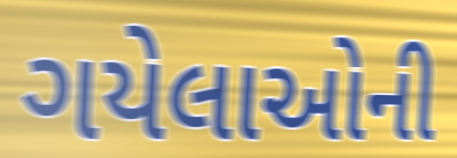
ગયેલાઓની